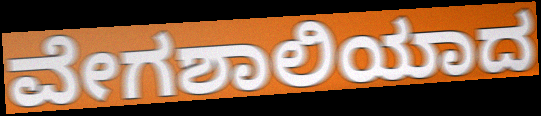
ವೇಗಶಾಲಿಯಾದ